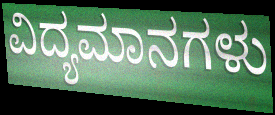
ವಿದ್ಯಮಾನಗಳು